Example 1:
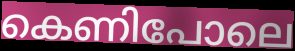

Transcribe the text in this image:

കെണിപോലെ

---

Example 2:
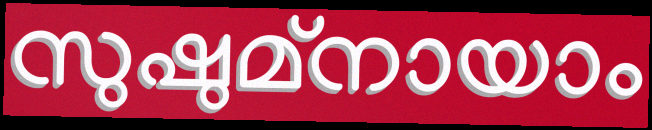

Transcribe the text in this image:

സുഷുമ്നായാം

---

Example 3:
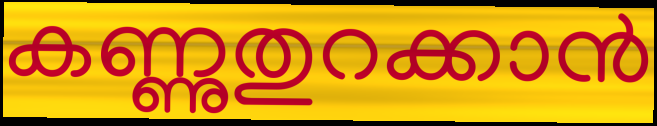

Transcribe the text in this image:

കണ്ണുതുറക്കാൻ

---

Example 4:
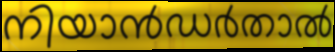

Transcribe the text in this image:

നിയാൻഡർതാൽ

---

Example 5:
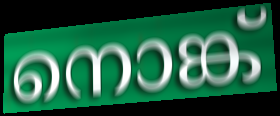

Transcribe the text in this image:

നൊങ്ക്